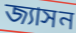
জ্যাসন